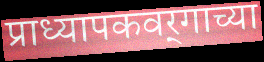
प्राध्यापकवर्गाच्या